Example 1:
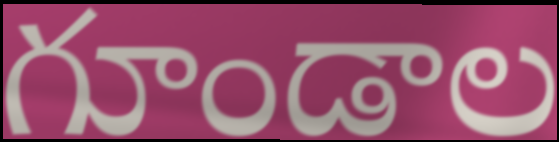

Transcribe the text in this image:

గూండాల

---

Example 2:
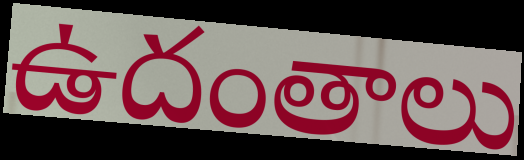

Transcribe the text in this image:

ఉదంతాలు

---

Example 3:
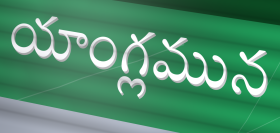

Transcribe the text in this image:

యాంగ్లమున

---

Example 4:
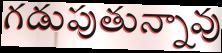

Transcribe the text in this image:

గడుపుతున్నావు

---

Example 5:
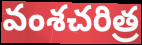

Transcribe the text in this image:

వంశచరిత్ర